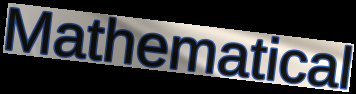
Mathematical